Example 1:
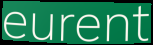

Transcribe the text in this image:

eurent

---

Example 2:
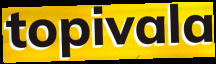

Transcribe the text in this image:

topivala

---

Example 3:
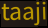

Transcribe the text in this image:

taaji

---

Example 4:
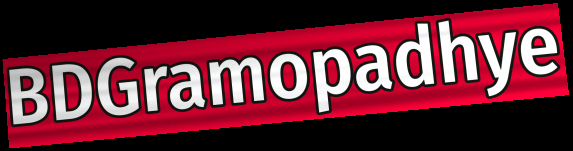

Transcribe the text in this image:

BDGramopadhye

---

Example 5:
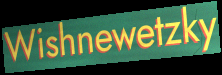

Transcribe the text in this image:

Wishnewetzky